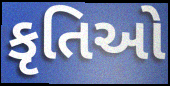
કૃતિઓ